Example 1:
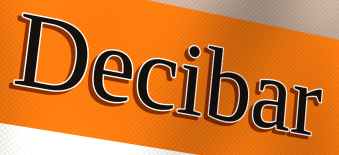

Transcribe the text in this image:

Decibar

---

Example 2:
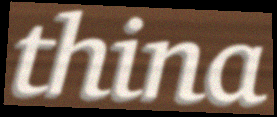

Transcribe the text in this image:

thina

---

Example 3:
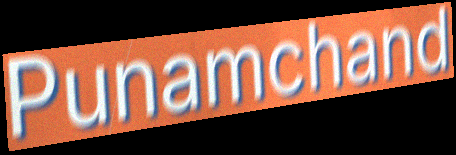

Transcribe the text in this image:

Punamchand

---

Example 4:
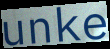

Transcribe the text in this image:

unke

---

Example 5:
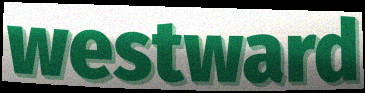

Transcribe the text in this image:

westward